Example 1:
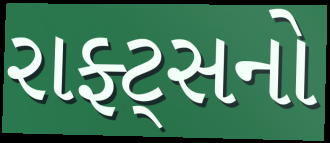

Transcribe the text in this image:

રાફ્ટ્સનો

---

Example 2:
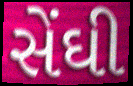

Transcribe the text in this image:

સેંઘી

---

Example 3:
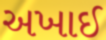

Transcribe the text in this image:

અખાઈ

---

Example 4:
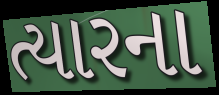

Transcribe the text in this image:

ત્યારના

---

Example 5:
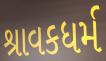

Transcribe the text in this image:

શ્રાવકધર્મ